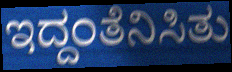
ಇದ್ದಂತೆನಿಸಿತು